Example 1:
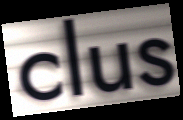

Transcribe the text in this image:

clus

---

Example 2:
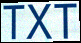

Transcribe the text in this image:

TXT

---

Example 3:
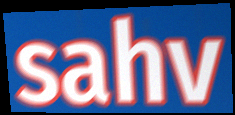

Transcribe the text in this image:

sahv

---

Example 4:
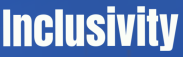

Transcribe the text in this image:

Inclusivity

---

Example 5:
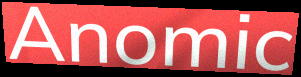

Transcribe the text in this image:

Anomic